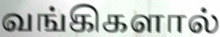
வங்கிகளால்